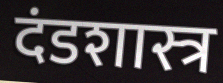
दंडशास्त्र